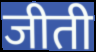
जीती